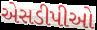
એસડીપીઓ